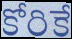
కోరికే